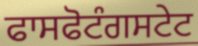
ਫਾਸਫੋਟੰਗਸਟੇਟ